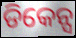
ଡିକେନ୍ସ